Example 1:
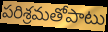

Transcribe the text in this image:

పరిశ్రమతోపాటు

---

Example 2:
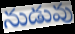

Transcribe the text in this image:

నుడువు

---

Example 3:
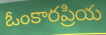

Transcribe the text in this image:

ఓంకారప్రియ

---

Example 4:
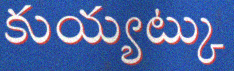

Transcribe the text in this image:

కుయ్యట్కు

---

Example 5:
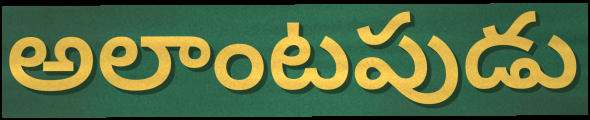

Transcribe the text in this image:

అలాంటపుడు